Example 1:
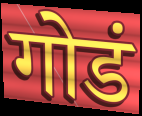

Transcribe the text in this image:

गोडं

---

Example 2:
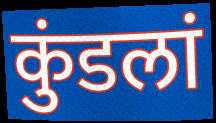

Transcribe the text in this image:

कुंडलां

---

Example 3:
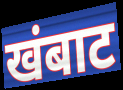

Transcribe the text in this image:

खंबाट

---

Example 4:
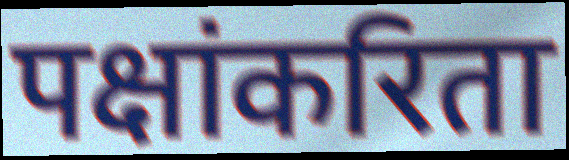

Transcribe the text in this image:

पक्षांकरिता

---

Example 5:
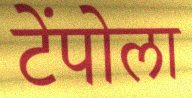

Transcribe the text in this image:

टेंपोला